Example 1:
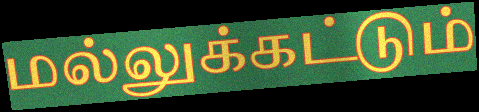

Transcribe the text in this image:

மல்லுக்கட்டும்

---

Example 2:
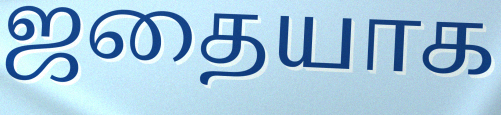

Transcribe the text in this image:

ஜதையாக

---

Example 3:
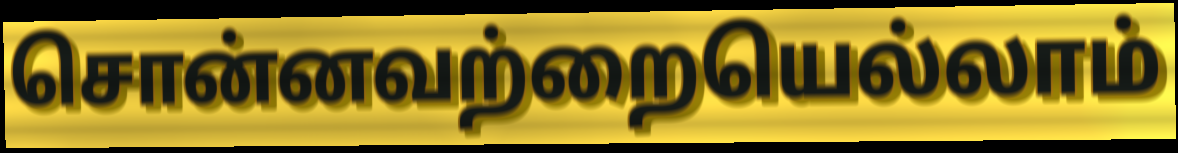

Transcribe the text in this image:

சொன்னவற்றையெல்லாம்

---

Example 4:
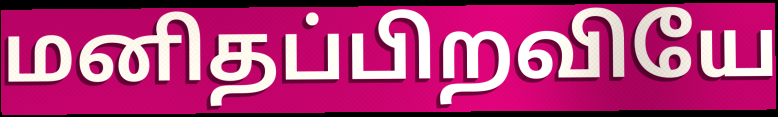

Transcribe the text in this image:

மனிதப்பிறவியே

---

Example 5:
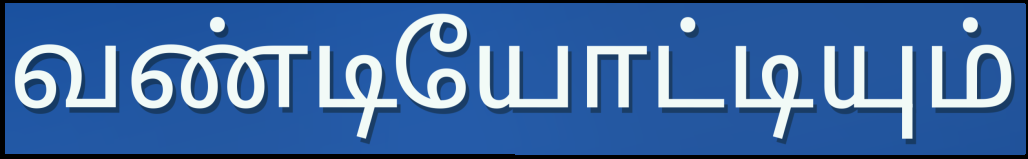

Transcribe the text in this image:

வண்டியோட்டியும்